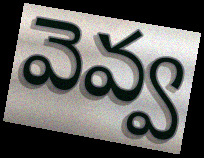
వెవ్వ